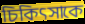
চিকিৎসাকে